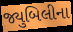
જ્યુબિલીના